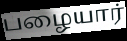
பழையார்